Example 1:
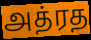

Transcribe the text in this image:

அத்ரத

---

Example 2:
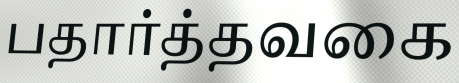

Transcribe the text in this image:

பதார்த்தவகை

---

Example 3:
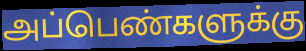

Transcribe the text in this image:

அப்பெண்களுக்கு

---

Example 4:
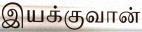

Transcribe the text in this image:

இயக்குவான்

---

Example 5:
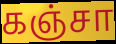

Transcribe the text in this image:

கஞ்சா